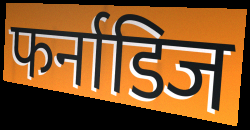
फर्नाडिज